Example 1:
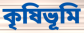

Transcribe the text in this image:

কৃষিভূমি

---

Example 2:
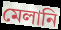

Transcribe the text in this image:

মেলানি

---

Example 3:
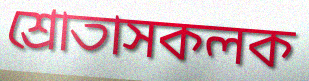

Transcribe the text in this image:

শ্ৰোতাসকলক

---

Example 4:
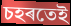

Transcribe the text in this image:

চহৰতেই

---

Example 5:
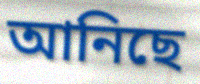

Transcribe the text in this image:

আনিছে